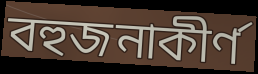
বহুজনাকীর্ণ